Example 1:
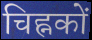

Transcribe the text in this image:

चिह्नकों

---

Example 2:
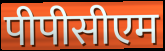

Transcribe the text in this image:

पीपीसीएम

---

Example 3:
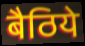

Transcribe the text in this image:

बैठिये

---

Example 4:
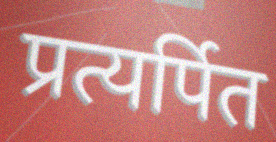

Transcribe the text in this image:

प्रत्यर्पित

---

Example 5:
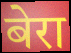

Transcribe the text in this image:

बेरा